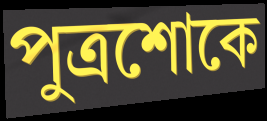
পুত্রশোকে